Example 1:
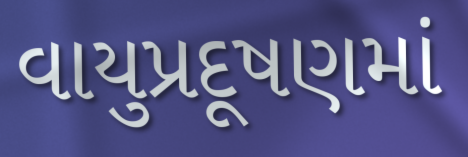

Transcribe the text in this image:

વાયુપ્રદૂષણમાં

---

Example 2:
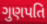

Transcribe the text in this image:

ગુણપતિ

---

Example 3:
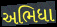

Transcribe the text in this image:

અભિધા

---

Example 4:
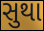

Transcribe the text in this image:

સુથા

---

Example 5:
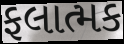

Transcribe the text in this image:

ફલાત્મક